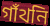
গাঁথনি